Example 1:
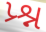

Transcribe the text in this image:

પ્ર્શ્ન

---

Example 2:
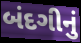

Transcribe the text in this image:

બંદગીનું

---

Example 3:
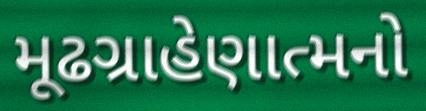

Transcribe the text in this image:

મૂઢગ્રાહેણાત્મનો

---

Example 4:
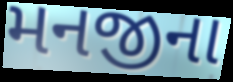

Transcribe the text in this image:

મનજીના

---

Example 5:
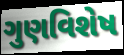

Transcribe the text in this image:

ગુણવિશેષ